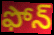
ఫోన్